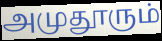
அமுதூரும்